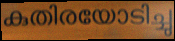
കുതിരയോടിച്ചു